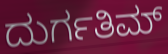
ದುರ್ಗತಿಮ್